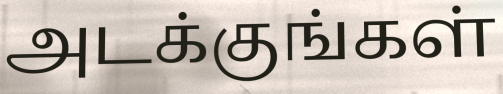
அடக்குங்கள்